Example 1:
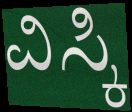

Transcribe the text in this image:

ವಿಸ್ಕಿ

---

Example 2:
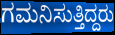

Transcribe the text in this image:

ಗಮನಿಸುತ್ತಿದ್ದರು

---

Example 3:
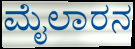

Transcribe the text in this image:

ಮೈಲಾರನ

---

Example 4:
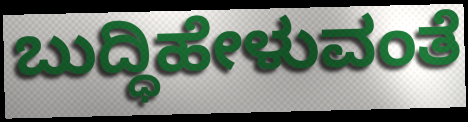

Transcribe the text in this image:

ಬುದ್ಧಿಹೇಳುವಂತೆ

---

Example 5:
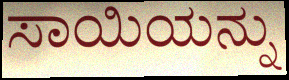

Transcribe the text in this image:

ಸಾಯಿಯನ್ನು